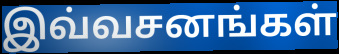
இவ்வசனங்கள்